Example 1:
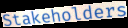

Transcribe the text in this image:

Stakeholders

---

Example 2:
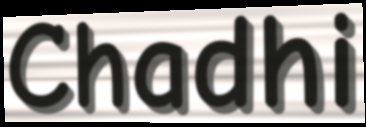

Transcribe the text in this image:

Chadhi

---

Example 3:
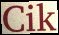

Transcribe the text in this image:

Cik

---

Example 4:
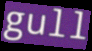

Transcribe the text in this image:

gull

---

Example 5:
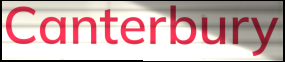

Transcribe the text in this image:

Canterbury